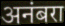
अनंबरा